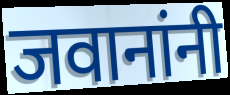
जवानांनी